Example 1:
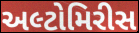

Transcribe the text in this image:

અલ્ટોમિરીસ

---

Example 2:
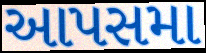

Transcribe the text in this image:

આપસમા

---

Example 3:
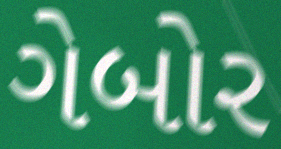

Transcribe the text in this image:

ગેબોર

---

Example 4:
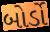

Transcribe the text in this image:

બોર્ડો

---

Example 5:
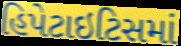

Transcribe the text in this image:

હિપેટાઇટિસમાં